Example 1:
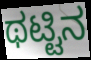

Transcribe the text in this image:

ಥಟ್ಟಿನ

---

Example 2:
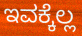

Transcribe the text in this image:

ಇವಕ್ಕೆಲ್ಲ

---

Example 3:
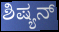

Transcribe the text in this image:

ಶಿಷ್ಯನ್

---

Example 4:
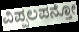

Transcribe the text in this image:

ವಿಪ್ಪಲಪನ್ತೋ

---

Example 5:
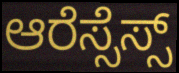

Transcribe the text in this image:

ಆರೆಸ್ಸೆಸ್ಸ್